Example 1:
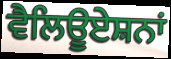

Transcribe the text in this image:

ਵੈਲਿਊਏਸ਼ਨਾਂ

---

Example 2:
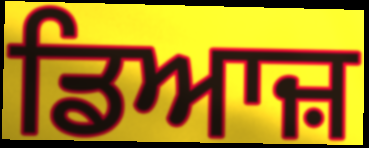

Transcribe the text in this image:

ਡਿਆਜ਼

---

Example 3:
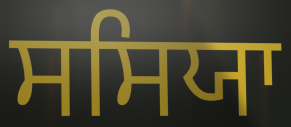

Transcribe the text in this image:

ਸਸਿਯਾ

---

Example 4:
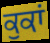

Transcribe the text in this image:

ਕੁਕਾਂ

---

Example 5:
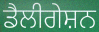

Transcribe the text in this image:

ਡੈਲੀਗੇਸ਼ਨ